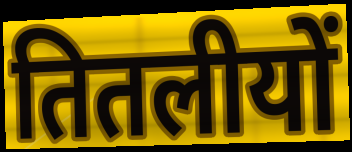
तितलीयों